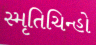
સ્મૃતિચિન્હો